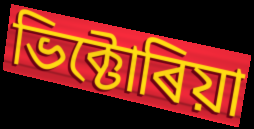
ভিক্টোৰিয়া